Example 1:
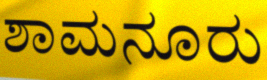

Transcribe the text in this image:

ಶಾಮನೂರು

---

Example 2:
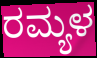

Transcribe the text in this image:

ರಮ್ಯಳ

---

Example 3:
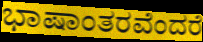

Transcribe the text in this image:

ಭಾಷಾಂತರವೆಂದರೆ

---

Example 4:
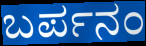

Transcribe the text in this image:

ಬರ್ಪನಂ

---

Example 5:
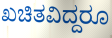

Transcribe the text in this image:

ಖಚಿತವಿದ್ದರೂ